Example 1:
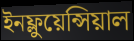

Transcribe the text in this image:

ইনফ্লুয়েন্সিয়াল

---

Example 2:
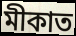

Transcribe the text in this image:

মীকাত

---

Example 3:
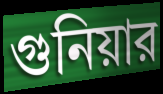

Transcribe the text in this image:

গুনিয়ার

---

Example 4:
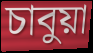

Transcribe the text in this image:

চাবুয়া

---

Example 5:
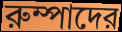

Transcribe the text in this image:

রুম্পাদের